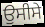
ਉਸੀਸੇ